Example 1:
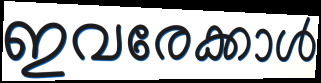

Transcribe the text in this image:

ഇവരേക്കാൾ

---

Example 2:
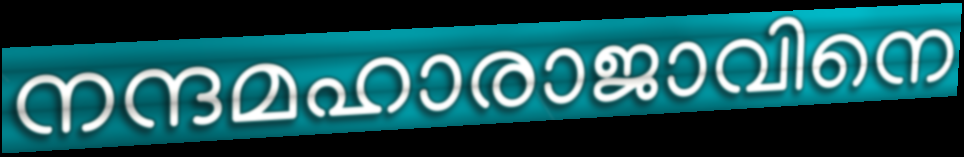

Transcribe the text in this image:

നന്ദമഹാരാജാവിനെ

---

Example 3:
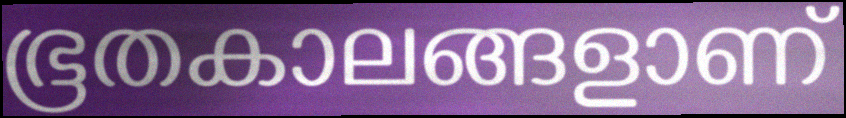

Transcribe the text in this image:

ഭൂതകാലങ്ങളാണ്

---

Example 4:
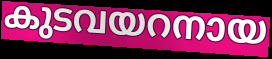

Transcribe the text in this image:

കുടവയറനായ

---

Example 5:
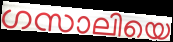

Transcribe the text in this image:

ഗസാലിയെ